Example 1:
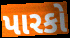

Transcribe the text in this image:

પારકો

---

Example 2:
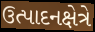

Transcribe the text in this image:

ઉત્પાદનક્ષેત્રે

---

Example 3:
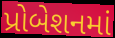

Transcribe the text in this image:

પ્રોબેશનમાં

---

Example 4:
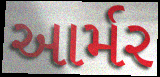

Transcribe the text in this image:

આર્મર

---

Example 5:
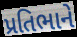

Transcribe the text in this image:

પ્રતિભાને